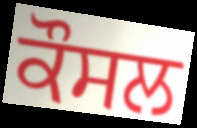
ਕੌਸਲ